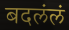
बदलंलं